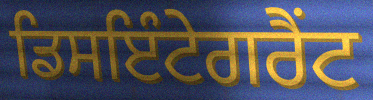
ਡਿਸਇੰਟੇਗਰੈਂਟ